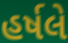
હર્ષલે